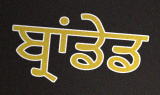
ਬ੍ਰਾਂਡੇਡ